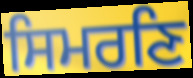
ਸਿਮਰਣਿ